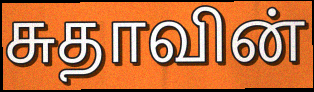
சுதாவின்